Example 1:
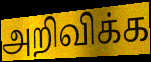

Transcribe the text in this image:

அறிவிக்க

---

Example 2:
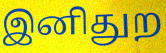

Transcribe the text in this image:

இனிதுற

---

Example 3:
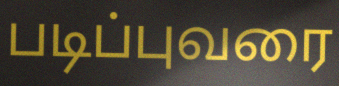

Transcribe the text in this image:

படிப்புவரை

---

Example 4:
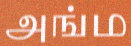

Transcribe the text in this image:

அங்ம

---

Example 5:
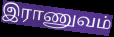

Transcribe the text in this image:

இராணுவம்